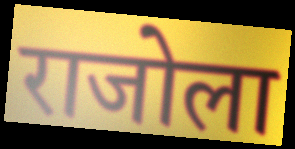
राजोला